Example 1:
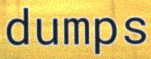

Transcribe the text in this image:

dumps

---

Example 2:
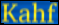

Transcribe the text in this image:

Kahf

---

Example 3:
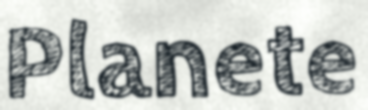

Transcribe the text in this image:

Planete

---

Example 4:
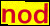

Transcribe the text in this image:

nod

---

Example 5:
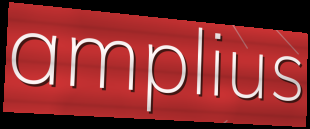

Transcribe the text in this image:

amplius